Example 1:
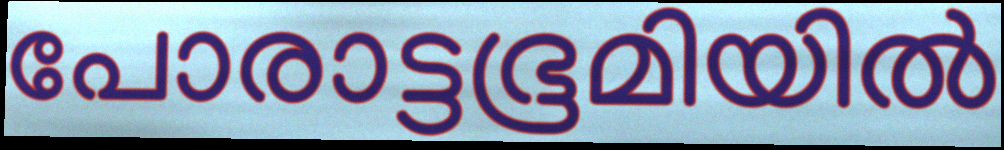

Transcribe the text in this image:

പോരാട്ടഭൂമിയിൽ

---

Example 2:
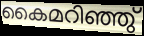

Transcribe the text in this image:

കൈമറിഞ്ഞു്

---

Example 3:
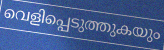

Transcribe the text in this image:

വെളിപ്പെടുത്തുകയും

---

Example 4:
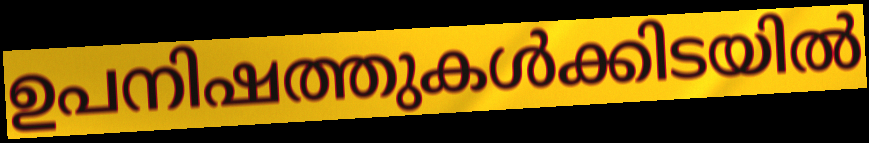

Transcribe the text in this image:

ഉപനിഷത്തുകൾക്കിടയിൽ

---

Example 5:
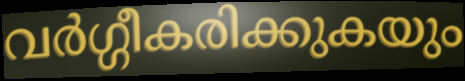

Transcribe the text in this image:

വർഗ്ഗീകരിക്കുകയും